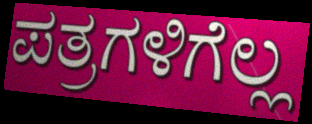
ಪತ್ರಗಳಿಗೆಲ್ಲ